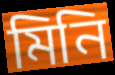
মিনি